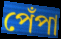
পেঁপা